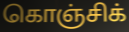
கொஞ்சிக்